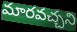
మారవచ్చని